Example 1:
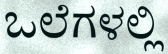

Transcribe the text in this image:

ಒಲೆಗಳಲ್ಲಿ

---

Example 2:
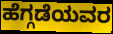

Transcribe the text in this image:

ಹೆಗ್ಗಡೆಯವರ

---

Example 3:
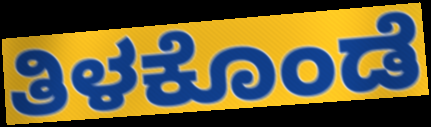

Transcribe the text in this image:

ತಿಳಕೊಂಡೆ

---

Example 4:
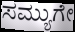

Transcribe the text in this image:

ಸಮ್ಯುಗೇ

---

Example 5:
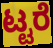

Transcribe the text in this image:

ಟ್ಟರೆ